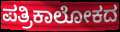
ಪತ್ರಿಕಾಲೋಕದ